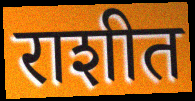
राशीत